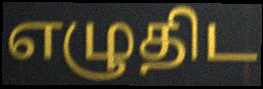
எழுதிட